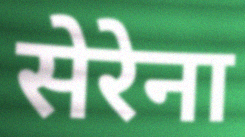
सेरेना